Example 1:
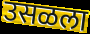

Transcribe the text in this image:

उसळला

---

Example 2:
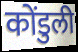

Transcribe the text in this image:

कोंडुली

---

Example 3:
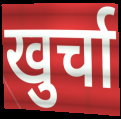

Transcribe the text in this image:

खुर्चा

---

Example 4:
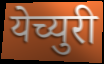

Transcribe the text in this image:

येच्युरी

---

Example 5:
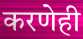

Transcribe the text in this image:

करणेही